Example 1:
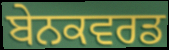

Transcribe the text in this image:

ਬੇਨਕਵਰਡ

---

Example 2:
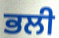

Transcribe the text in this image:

ਭਲੀ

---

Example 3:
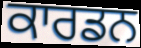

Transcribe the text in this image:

ਕਾਰਡਨ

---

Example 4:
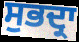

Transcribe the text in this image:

ਸੁਭਦ੍ਰਾ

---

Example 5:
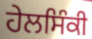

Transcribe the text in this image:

ਹੇਲਸਿੰਕੀ